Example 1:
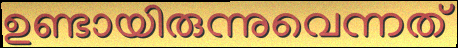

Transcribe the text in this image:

ഉണ്ടായിരുന്നുവെന്നത്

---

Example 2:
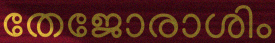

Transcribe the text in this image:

തേജോരാശിം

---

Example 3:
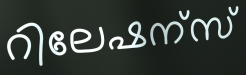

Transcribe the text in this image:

റിലേഷന്സ്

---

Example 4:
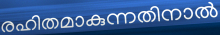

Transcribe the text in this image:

രഹിതമാകുന്നതിനാൽ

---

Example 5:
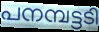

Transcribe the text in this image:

പനമ്പട്ടടി